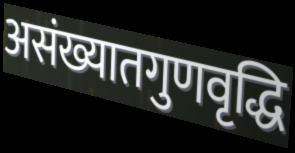
असंख्यातगुणवृद्धि